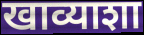
खाव्याशा